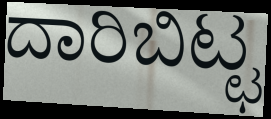
ದಾರಿಬಿಟ್ಟ